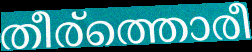
തീര്ത്തൊരീ